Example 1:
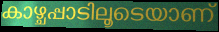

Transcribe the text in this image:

കാഴ്ചപ്പാടിലൂടെയാണ്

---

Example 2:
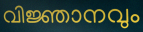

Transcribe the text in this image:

വിജ്ഞാനവും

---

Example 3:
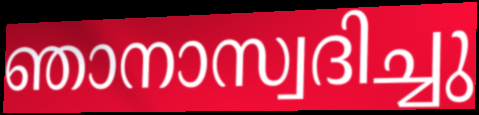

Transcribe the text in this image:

ഞാനാസ്വദിച്ചു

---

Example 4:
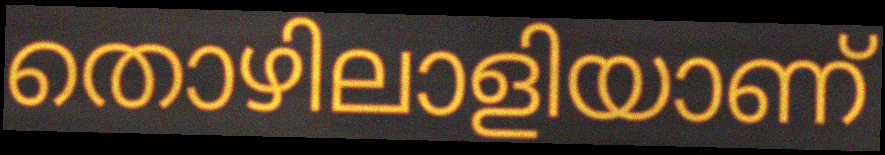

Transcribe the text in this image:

തൊഴിലാളിയാണ്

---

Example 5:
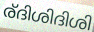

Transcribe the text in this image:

ര്ദിശിദിശി